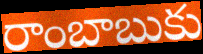
రాంబాబుకు